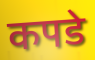
कपडे